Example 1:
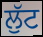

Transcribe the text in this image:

ਲੁੱਟ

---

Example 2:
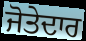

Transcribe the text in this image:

ਜੋਤੇਦਾਰ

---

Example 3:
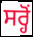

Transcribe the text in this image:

ਸਰ੍ਹੋਂ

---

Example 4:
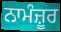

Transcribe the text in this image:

ਨਾਮੰਜ਼ੂਰ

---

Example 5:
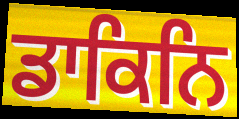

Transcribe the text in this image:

ਡਾਕਿਨਿ